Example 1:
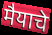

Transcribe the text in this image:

मैयाचे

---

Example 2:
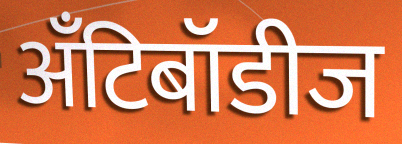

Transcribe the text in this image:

अँटिबॉडीज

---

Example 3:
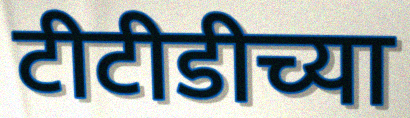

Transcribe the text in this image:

टीटीडीच्या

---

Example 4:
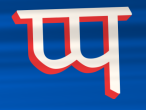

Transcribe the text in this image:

प्प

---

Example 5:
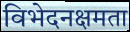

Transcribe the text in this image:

विभेदनक्षमता